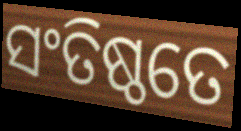
ସଂତିଷ୍ଠତେ